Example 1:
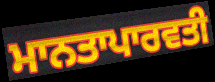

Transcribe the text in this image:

ਮਾਨਤਾਪਾਰਵਤੀ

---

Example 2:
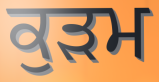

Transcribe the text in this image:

ਕੁੜਮ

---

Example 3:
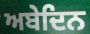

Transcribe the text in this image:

ਅਬੇਦਿਨ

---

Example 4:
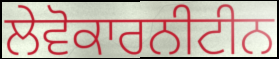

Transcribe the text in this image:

ਲੇਵੋਕਾਰਨੀਟੀਨ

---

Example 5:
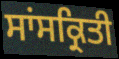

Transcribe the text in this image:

ਸਾਂਸਕ੍ਰਿਤੀ